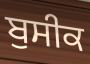
ਬੁਸੀਕ